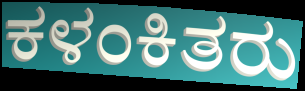
ಕಳಂಕಿತರು